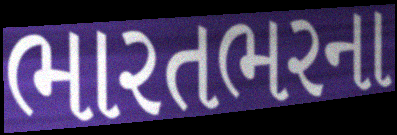
ભારતભરના